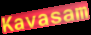
Kavasam